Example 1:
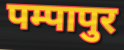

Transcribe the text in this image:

पम्पापुर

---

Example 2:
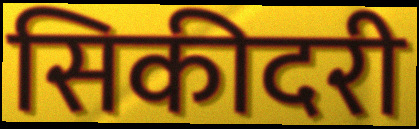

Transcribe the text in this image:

सिकीदरी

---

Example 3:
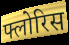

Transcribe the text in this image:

फ्लोरिस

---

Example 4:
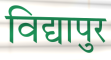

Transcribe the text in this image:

विद्यापुर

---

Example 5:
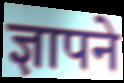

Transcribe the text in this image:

ज्ञापने